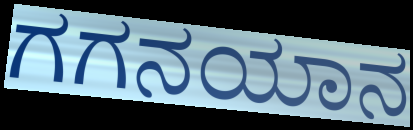
ಗಗನಯಾನ